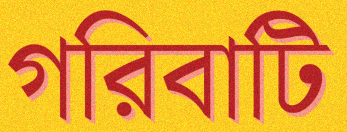
গরিবাটি